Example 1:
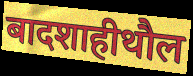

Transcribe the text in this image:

बादशाहीथौल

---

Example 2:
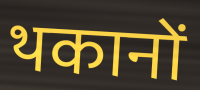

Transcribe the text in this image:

थकानों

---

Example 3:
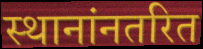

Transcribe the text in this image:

स्थानांनतरित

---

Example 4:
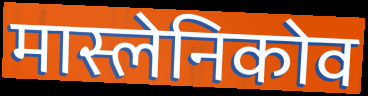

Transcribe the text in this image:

मास्लेनिकोव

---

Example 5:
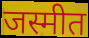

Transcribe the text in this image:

जस्मीत